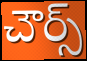
చౌర్స్